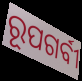
ରୂପଗର୍ବୀ